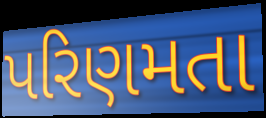
પરિણમતા